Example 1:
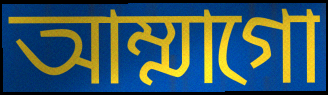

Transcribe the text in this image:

আম্মাগো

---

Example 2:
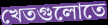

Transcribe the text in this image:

খেতগুলোতে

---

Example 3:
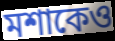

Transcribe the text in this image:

মশাকেও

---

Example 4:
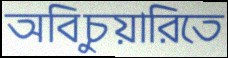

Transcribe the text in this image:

অবিচুয়ারিতে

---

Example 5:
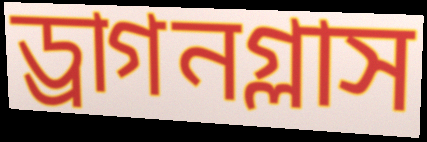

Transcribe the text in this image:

ড্রাগনগ্লাস